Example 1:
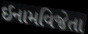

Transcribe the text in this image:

ઈનામવિજેતા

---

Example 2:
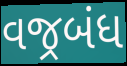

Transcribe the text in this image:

વજ્રબંધ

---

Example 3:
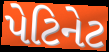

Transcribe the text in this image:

પેટિનેટ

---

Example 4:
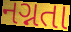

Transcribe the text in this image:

નગ્નતા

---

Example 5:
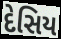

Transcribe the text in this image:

દેસિય